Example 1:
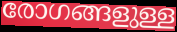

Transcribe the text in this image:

രോഗങ്ങളുള്ള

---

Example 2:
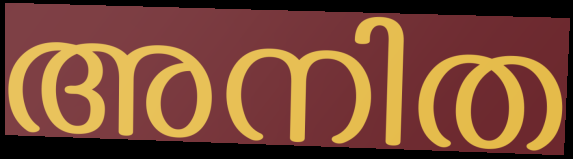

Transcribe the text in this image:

അനിത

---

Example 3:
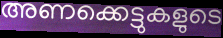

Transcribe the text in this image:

അണക്കെട്ടുകളുടെ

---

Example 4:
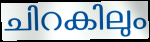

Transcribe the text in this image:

ചിറകിലും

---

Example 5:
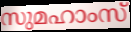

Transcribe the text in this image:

സുമഹാംസ്